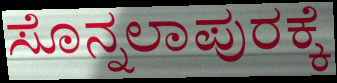
ಸೊನ್ನಲಾಪುರಕ್ಕೆ